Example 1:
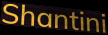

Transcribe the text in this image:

Shantini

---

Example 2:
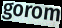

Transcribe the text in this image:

gorom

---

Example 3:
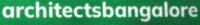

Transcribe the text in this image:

architectsbangalore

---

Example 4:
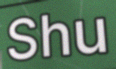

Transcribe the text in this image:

Shu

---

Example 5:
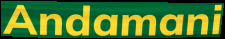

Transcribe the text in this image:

Andamani